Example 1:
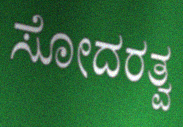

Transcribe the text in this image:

ಸೋದರತ್ವ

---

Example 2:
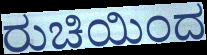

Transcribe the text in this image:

ರುಚಿಯಿಂದ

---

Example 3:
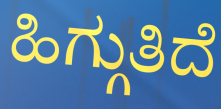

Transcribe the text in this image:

ಹಿಗ್ಗುತಿದೆ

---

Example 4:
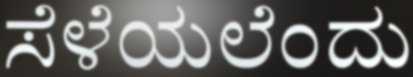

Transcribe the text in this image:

ಸೆಳೆಯಲೆಂದು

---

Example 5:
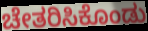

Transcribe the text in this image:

ಚೇತರಿಸಿಕೊಂಡು